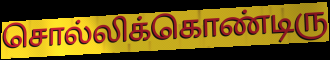
சொல்லிக்கொண்டிரு